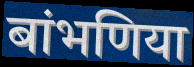
बांभणिया